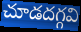
చూడదగ్గవి